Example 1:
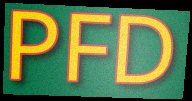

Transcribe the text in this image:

PFD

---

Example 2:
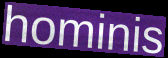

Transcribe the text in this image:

hominis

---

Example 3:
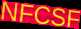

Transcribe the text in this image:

NFCSF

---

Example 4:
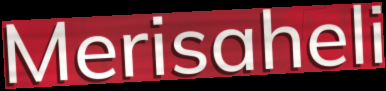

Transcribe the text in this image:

Merisaheli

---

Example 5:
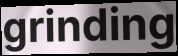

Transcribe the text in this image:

grinding